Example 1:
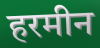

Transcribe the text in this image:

हरमीन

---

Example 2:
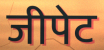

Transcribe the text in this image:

जीपेट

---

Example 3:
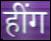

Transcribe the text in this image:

हींग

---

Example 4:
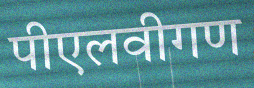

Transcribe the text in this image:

पीएलवीगण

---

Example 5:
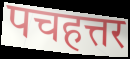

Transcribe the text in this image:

पचहत्तर